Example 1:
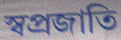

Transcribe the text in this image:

স্বপ্রজাতি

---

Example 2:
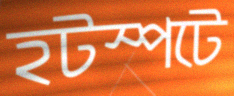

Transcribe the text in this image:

হটস্পটে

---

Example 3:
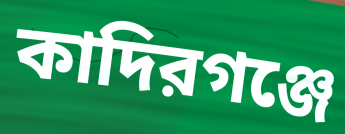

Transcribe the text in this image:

কাদিরগঞ্জে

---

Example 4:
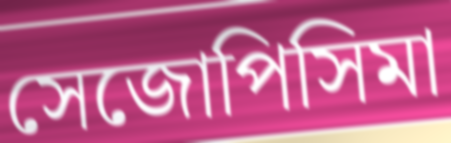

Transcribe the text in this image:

সেজোপিসিমা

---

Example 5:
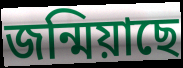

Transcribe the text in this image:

জন্মিয়াছে